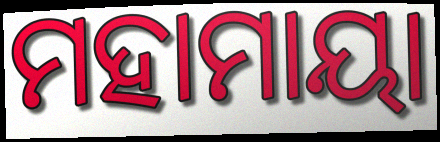
ମହାମାୟା